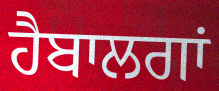
ਹੈਬਾਲਗਾਂ